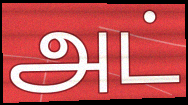
அட்